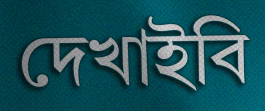
দেখাইবি